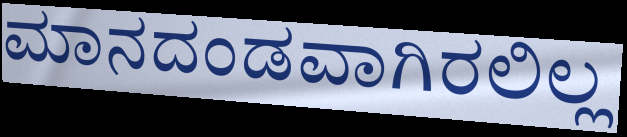
ಮಾನದಂಡವಾಗಿರಲಿಲ್ಲ